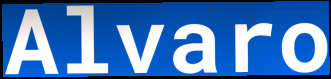
Alvaro